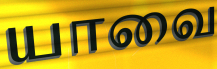
யாவை